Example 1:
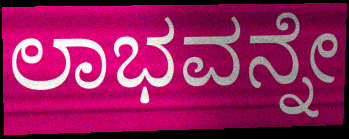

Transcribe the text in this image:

ಲಾಭವನ್ನೇ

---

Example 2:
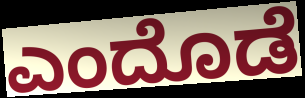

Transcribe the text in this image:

ಎಂದೊಡೆ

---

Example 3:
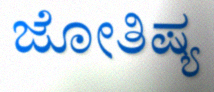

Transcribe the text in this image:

ಜೋತಿಷ್ಯ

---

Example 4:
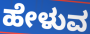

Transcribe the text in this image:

ಹೇಳುವ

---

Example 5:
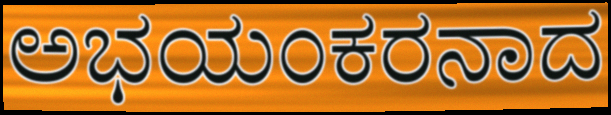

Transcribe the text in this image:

ಅಭಯಂಕರನಾದ